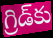
గ్రిడ్‌కు